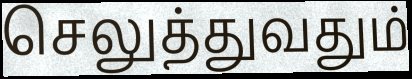
செலுத்துவதும்